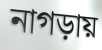
নাগড়ায়